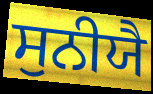
ਸੁਨੀਯੈ